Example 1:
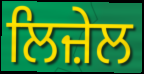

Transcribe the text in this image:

ਲਿਜ਼ੇਲ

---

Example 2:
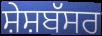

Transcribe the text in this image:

ਸ਼ੇਸ਼ਬੱਸਰ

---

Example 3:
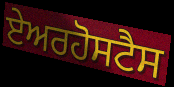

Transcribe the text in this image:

ਏਅਰਹੋਸਟੈਸ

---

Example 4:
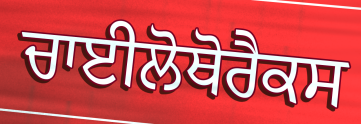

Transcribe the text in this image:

ਚਾਈਲੋਥੋਰੈਕਸ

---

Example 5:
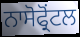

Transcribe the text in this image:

ਨਾਸੋਫ੍ਰੋਂਟਲ